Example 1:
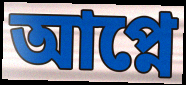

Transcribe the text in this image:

আপ্নে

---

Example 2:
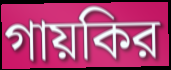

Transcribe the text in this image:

গায়কির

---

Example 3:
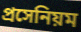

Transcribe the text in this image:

প্রসেনিয়ম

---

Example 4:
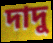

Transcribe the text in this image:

দাদু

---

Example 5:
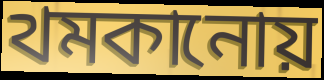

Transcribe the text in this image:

থমকানোয়